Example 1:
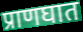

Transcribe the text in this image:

प्राणघात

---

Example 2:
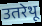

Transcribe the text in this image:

उतरेथू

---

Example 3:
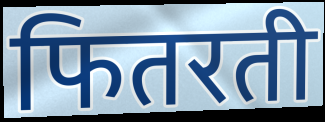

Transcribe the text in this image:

फितरती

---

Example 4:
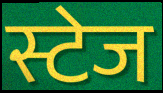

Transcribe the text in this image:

स्‍टेज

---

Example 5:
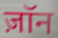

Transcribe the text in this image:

ज़ॉन